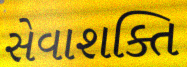
સેવાશક્તિ